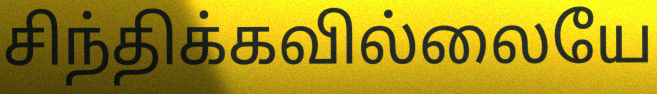
சிந்திக்கவில்லையே